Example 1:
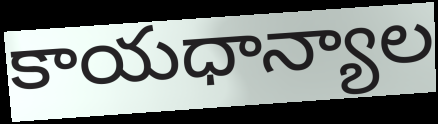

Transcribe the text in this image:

కాయధాన్యాల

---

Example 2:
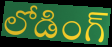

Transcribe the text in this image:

లోడింగ్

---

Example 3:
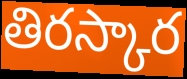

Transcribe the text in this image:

తిరస్కార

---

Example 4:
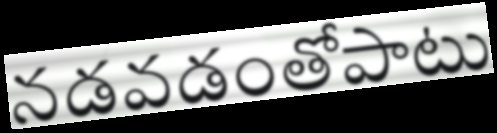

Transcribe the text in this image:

నడవడంతోపాటు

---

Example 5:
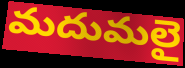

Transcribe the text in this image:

మదుమలై